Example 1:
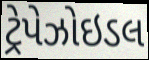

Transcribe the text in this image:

ટ્રેપેઝોઇડલ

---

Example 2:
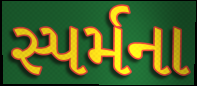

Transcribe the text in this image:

સ્પર્મના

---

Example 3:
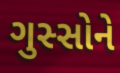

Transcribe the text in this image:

ગુસ્સોને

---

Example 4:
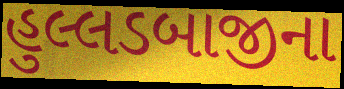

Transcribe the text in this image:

હુલ્લડબાજીના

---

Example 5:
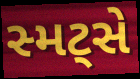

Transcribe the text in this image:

સ્મટ્સે